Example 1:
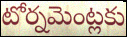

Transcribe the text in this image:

టోర్నమెంట్లకు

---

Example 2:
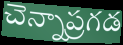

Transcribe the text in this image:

చెన్నాప్రగడ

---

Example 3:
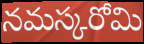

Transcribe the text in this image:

నమస్కరోమి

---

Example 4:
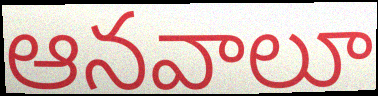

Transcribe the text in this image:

ఆనవాలూ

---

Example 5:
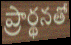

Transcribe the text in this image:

ప్రార్థనతో